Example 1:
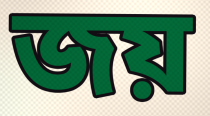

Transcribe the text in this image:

জয়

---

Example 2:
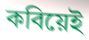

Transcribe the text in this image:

কবিয়েই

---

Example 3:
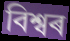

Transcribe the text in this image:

বিশ্বৰ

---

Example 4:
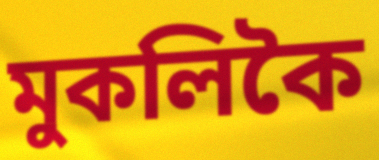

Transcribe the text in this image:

মুকলিকৈ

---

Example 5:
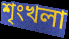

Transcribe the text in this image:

শৃংখলা